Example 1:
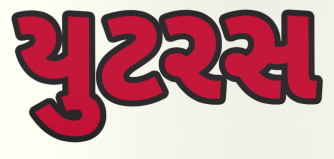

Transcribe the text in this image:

યુટરસ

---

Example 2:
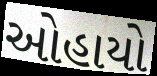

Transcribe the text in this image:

ઓહાયો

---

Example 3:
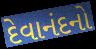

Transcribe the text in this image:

દેવાનંદનો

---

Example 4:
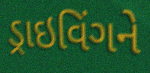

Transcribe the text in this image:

ડ્રાઇવિંગને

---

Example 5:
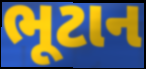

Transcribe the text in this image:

ભૂટાન